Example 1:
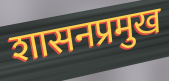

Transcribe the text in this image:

शासनप्रमुख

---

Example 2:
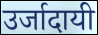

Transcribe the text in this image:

उर्जादायी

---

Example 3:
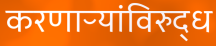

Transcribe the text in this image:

करणाऱ्यांविरुद्ध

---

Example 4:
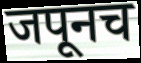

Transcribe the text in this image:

जपूनच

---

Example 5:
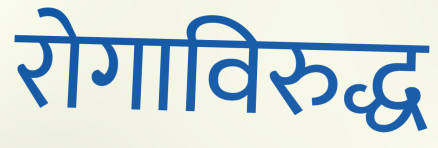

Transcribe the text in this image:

रोगाविरुद्ध